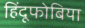
हिंदूफोबिया